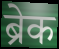
ब्रेक